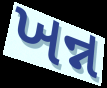
ખન્ન